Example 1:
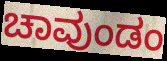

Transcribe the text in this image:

ಚಾವುಂಡಂ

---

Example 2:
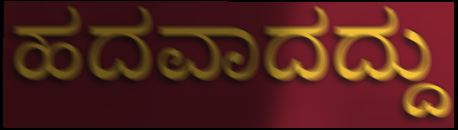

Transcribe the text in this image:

ಹದವಾದದ್ದು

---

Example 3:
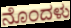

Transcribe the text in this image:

ನೊಂದಳು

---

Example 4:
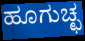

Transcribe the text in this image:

ಹೂಗುಚ್ಛ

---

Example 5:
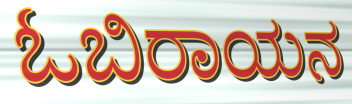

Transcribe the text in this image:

ಓಬಿರಾಯನ